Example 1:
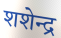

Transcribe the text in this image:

शशेन्द्र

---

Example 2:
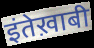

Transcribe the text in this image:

इंतेख़ाबी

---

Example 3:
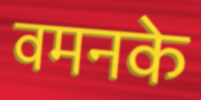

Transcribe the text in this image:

वमनके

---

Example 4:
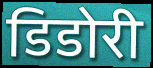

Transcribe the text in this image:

डिडोरी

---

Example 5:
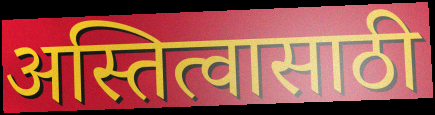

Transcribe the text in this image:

अस्तित्वासाठी